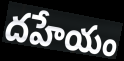
దహేయం